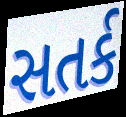
સતર્ક